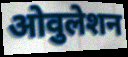
ओवुलेशन